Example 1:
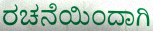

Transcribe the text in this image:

ರಚನೆಯಿಂದಾಗಿ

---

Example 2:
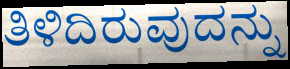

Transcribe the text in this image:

ತಿಳಿದಿರುವುದನ್ನು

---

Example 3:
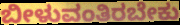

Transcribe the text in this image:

ಬೀಳುವಂತಿರಬೇಕು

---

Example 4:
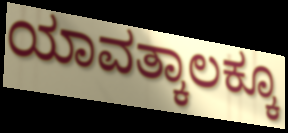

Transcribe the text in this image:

ಯಾವತ್ಕಾಲಕ್ಕೂ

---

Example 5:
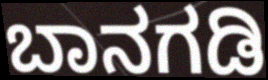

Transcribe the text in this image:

ಬಾನಗಡಿ